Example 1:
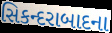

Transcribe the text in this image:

સિકન્દરાબાદના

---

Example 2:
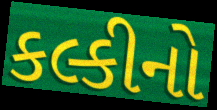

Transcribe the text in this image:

કલ્કીનો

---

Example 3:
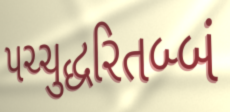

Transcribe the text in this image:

પચ્ચુદ્ધરિતબ્બં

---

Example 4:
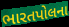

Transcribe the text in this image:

ભારતપોલના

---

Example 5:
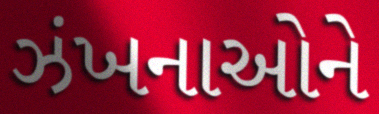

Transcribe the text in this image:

ઝંખનાઓને